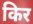
किर